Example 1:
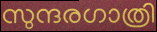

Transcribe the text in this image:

സുന്ദരഗാത്രി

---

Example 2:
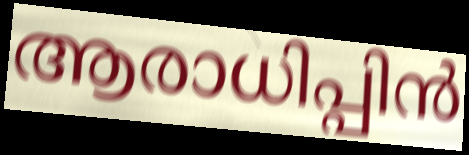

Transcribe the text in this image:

ആരാധിപ്പിൻ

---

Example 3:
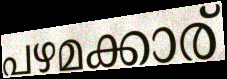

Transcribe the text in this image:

പഴമക്കാര്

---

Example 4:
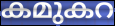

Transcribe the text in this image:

കമുകറ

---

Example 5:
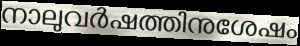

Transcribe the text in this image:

നാലുവർഷത്തിനുശേഷം